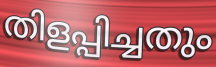
തിളപ്പിച്ചതും